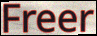
Freer